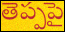
తెప్పపై